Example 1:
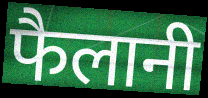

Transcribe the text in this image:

फैलानी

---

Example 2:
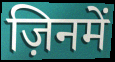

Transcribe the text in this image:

ज़िनमें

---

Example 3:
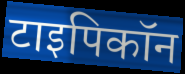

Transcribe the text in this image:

टाइपिकॉन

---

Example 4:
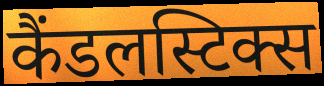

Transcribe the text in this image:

कैंडलस्टिक्स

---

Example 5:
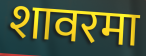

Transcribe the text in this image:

शावरमा